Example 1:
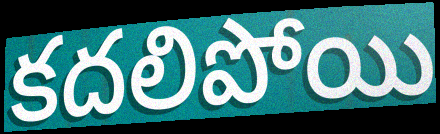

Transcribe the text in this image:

కదలిపోయి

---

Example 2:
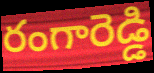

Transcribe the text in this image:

రంగారెడ్డి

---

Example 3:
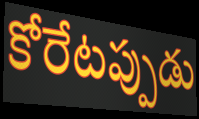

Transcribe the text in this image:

కోరేటప్పుడు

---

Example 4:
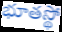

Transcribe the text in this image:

భూతస్థో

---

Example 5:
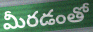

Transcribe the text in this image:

మీరడంతో